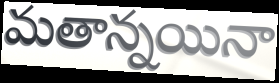
మతాన్నయినా